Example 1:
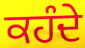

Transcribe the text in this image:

ਕਹੰਦੇ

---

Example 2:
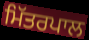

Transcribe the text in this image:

ਮਿੱਤਰਪਾਲ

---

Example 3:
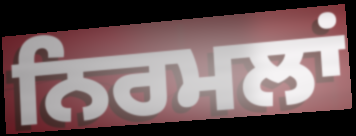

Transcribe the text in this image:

ਨਿਰਮਲਾਂ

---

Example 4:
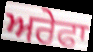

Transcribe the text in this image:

ਅਰੇਫਾ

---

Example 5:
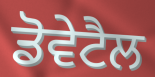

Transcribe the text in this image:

ਡੋਵੇਟੈਲ